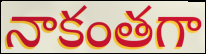
నాకంతగా